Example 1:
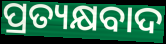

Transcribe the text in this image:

ପ୍ରତ୍ୟକ୍ଷବାଦ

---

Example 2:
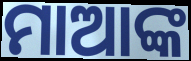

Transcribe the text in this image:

ମାଆଙ୍କ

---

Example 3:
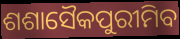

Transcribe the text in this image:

ଶଶାସୈକପୁରୀମିବ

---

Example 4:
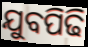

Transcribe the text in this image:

ଯୁବପିଢି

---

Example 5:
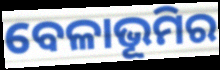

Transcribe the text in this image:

ବେଳାଭୂମିର